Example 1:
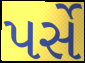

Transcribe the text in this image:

પર્સે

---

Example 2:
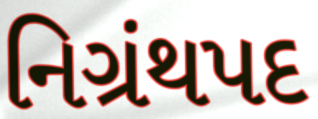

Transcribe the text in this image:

નિગ્રંથપદ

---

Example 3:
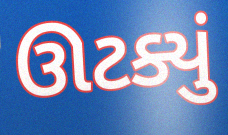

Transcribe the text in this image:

ઊટક્યું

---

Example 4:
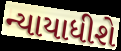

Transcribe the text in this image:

ન્યાયાધીશે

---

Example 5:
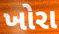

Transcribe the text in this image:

ખોરા